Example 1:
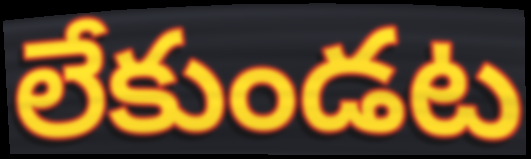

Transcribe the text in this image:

లేకుండట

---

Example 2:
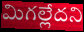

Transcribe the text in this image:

మిగల్లేదని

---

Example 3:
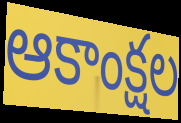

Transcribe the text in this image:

ఆకాంక్షల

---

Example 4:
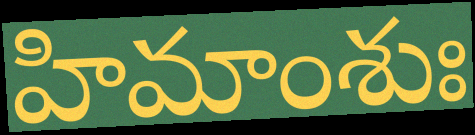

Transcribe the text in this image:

హిమాంశుః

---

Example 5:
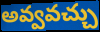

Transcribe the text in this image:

అవ్వవచ్చు